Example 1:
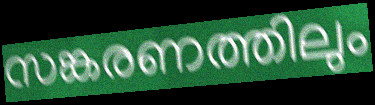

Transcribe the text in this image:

സങ്കരണത്തിലും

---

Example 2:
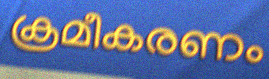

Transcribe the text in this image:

ക്രമീകരണം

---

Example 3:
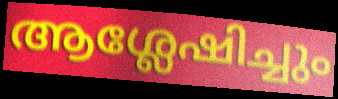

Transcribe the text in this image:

ആശ്ലേഷിച്ചും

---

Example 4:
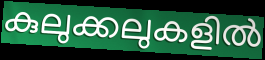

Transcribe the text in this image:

കുലുക്കലുകളിൽ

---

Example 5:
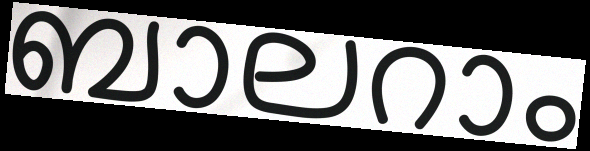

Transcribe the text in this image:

ബാലറാം